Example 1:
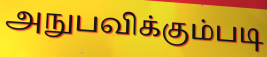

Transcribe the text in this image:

அநுபவிக்கும்படி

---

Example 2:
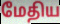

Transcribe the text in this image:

மேதிய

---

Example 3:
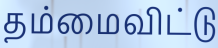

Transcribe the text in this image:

தம்மைவிட்டு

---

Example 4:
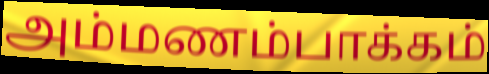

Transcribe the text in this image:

அம்மணம்பாக்கம்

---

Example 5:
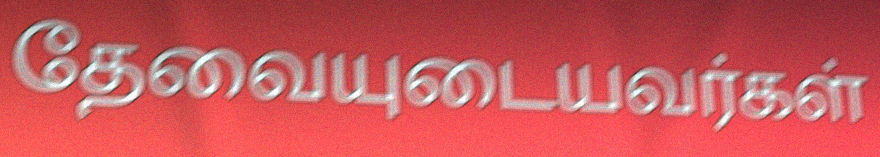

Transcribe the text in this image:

தேவையுடையவர்கள்